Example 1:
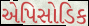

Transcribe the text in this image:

એપિસોડિક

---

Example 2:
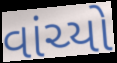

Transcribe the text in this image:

વાંચ્યો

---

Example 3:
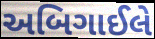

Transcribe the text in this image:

અબિગાઈલે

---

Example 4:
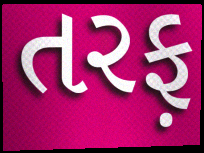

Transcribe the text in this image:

તરફ઼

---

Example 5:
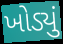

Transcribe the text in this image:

ખોડ્યું